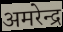
अमरेन्द्र